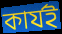
কাৰ্যই